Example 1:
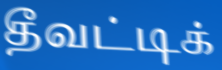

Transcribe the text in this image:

தீவட்டிக்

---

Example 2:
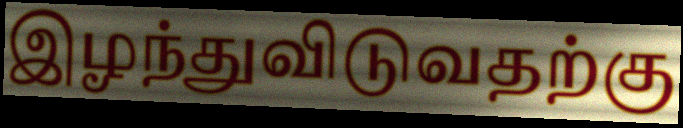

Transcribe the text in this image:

இழந்துவிடுவதற்கு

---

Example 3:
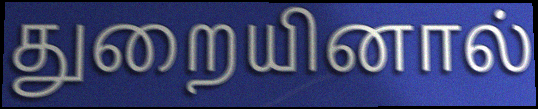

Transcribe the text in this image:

துறையினால்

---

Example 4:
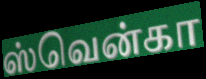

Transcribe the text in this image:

ஸ்வென்கா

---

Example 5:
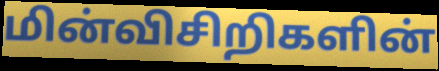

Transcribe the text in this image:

மின்விசிறிகளின்